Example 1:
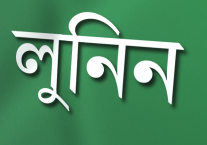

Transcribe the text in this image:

লুনিন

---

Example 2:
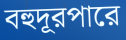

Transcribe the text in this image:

বহুদূরপারে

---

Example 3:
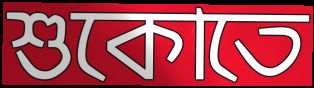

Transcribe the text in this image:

শুকোতে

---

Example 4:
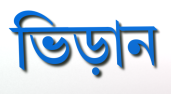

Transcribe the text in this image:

ভিড়ান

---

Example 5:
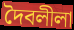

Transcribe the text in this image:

দৈবলীলা